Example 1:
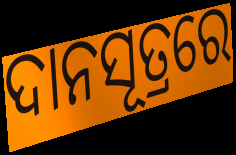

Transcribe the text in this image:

ଦାନସୂତ୍ରରେ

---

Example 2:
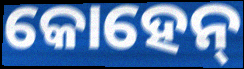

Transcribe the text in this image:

କୋହେନ୍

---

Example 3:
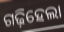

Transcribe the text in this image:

ଗଢ଼ିହେଲା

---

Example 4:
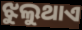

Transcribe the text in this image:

ଝୁଲୁଥାଏ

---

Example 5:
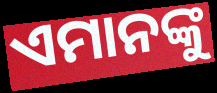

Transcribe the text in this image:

ଏମାନଙ୍କୁ